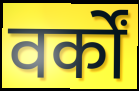
वर्कों